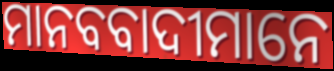
ମାନବବାଦୀମାନେ